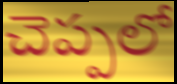
చెప్పలో